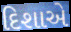
દિશાએ